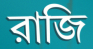
রাজি